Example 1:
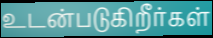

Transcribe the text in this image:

உடன்படுகிறீர்கள்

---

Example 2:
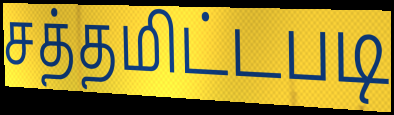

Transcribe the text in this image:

சத்தமிட்டபடி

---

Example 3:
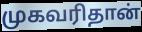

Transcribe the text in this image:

முகவரிதான்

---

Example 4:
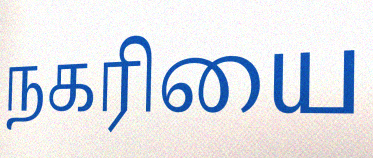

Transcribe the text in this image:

நகரியை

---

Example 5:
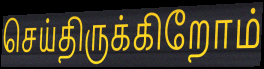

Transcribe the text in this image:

செய்திருக்கிறோம்